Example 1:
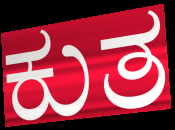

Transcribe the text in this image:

ಕುತ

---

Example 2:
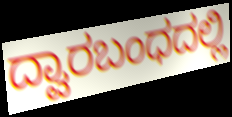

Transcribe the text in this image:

ದ್ವಾರಬಂಧದಲ್ಲಿ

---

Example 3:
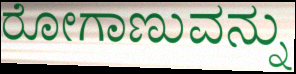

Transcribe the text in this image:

ರೋಗಾಣುವನ್ನು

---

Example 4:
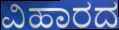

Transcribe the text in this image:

ವಿಹಾರದ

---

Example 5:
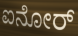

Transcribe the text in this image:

ಐನೋರ್